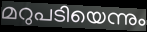
മറുപടിയെന്നും